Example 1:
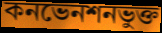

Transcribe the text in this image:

কনভেনশনভুক্ত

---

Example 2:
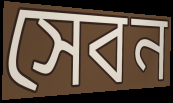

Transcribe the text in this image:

সেবন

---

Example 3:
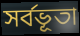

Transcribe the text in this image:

সর্বভূতা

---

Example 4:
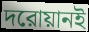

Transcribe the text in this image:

দরোয়ানই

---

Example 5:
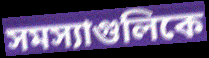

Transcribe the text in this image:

সমস্যাগুলিকে